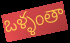
ఒళ్ళంతా